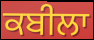
ਕਬੀਲਾ